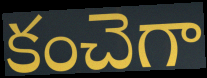
కంచెగా